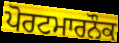
ਪੋਰਟਮਾਰਨੌਕ